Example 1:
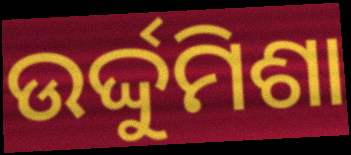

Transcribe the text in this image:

ଉର୍ଦ୍ଦୁମିଶା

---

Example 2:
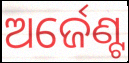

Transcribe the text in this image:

ଅର୍ଜେଣ୍ଟ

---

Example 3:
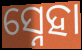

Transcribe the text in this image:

ସ୍ନେହା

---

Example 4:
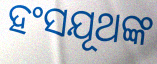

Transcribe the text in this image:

ହଂସଯୂଥଙ୍କ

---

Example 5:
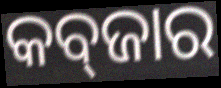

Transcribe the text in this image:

କବ୍‍ଜାର